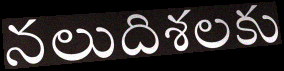
నలుదిశలకు